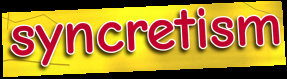
syncretism